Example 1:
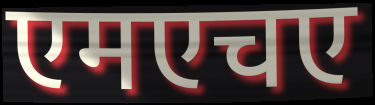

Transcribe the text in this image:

एमएचए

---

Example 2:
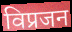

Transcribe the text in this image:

विप्रजन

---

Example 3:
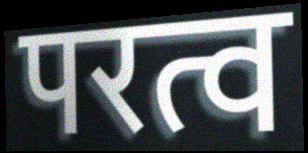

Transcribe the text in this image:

परत्व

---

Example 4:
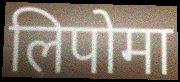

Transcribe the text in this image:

लिपोमा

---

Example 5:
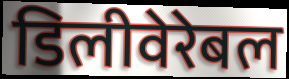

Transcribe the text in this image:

डिलीवेरेबल